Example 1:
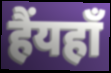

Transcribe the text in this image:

हैंयहाँ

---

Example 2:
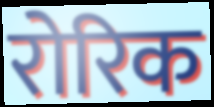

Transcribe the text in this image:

रोरिक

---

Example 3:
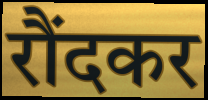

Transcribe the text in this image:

रौंदकर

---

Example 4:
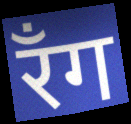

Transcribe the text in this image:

रॅंग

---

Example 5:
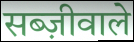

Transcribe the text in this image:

सब्ज़ीवाले